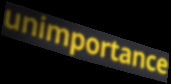
unimportance